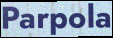
Parpola